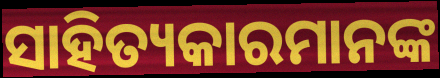
ସାହିତ୍ୟକାରମାନଙ୍କ